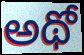
అథో